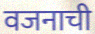
वजनाची